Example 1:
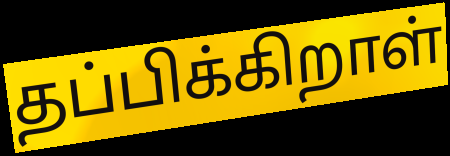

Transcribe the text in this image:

தப்பிக்கிறாள்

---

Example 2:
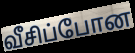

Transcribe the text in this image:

வீசிப்போன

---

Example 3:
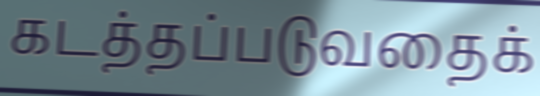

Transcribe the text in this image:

கடத்தப்படுவதைக்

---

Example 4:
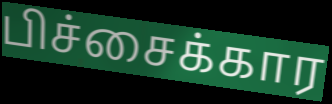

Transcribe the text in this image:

பிச்சைக்கார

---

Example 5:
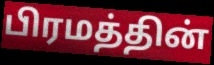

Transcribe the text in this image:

பிரமத்தின்